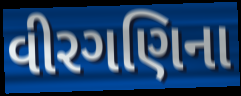
વીરગણિના